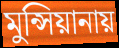
মুন্সিয়ানায়